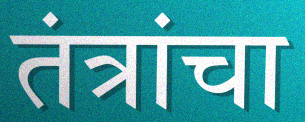
तंत्रांचा